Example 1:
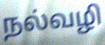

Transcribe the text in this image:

நல்வழி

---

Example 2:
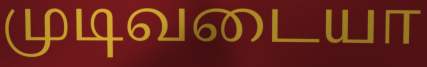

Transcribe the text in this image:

முடிவடையா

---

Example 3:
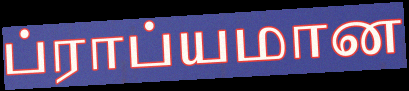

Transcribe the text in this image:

ப்ராப்யமான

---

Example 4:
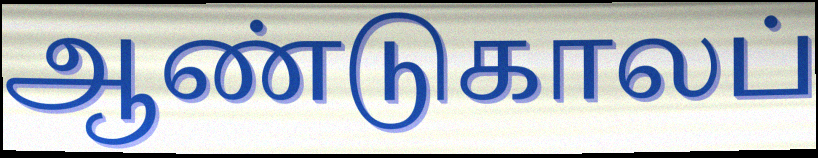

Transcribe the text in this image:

ஆண்டுகாலப்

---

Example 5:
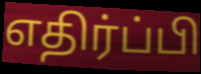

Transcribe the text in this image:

எதிர்ப்பி